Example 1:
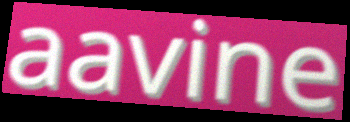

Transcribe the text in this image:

aavine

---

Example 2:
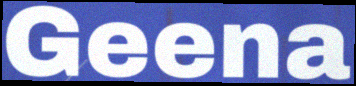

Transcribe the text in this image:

Geena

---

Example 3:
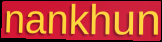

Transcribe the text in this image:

nankhun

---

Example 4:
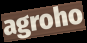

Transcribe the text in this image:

agroho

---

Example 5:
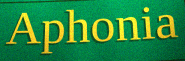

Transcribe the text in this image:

Aphonia